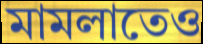
মামলাতেও